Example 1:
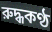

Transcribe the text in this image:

রুদ্ধকণ্ঠ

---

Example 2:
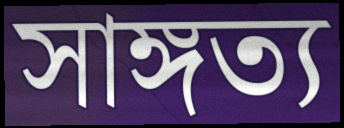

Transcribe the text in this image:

সাঙ্গত্য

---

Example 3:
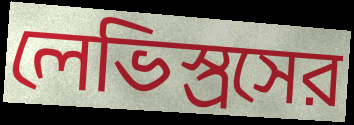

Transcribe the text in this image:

লেভিস্ত্রসের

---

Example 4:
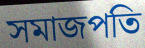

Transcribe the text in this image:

সমাজপতি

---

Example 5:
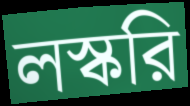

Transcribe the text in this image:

লস্করি